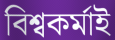
বিশ্বকর্মাই